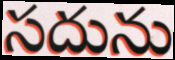
సదును